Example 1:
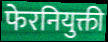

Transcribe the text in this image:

फेरनियुक्ती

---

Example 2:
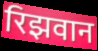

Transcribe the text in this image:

रिझवान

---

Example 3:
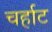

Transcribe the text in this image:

चर्हाट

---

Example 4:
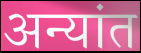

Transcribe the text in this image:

अन्यांत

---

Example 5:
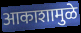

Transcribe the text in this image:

आकाशामुळे